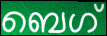
ബെഗ്